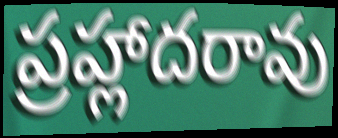
ప్రహ్లాదరావు